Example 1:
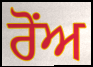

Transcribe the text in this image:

ਰੋਂਅ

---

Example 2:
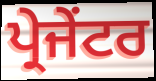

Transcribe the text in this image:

ਪ੍ਰੇਜੇਂਟਰ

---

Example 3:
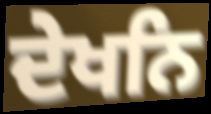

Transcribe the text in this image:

ਦੇਖਨਿ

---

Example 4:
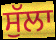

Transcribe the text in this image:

ਸੁੱਲਾ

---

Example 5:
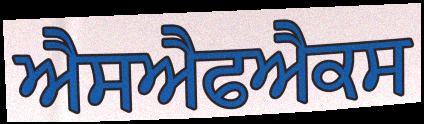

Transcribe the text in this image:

ਐਸਐਫਐਕਸ